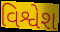
વિશ્વેશ